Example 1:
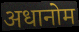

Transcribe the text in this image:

अधानोम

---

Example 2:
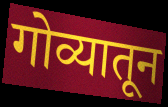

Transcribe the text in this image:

गोव्यातून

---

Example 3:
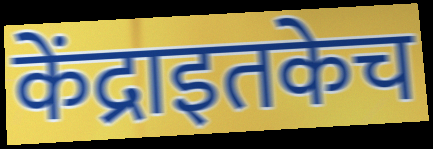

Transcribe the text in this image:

केंद्राइतकेच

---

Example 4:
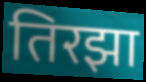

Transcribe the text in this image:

तिरझा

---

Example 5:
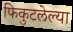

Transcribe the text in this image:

फिकुटलेल्या